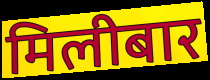
मिलीबार